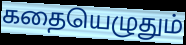
கதையெழுதும்